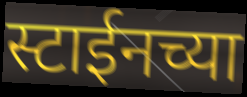
स्टाईनच्या